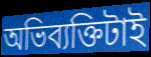
অভিব্যক্তিটাই